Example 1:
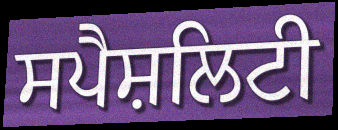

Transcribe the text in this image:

ਸਪੈਸ਼ਲਿਟੀ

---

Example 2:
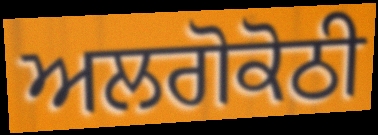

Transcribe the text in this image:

ਅਲਗੋਕੋਠੀ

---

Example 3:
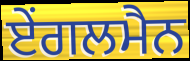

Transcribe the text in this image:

ਏਂਗਲਮੈਨ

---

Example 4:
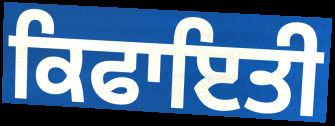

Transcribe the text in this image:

ਕਿਫਾਇਤੀ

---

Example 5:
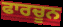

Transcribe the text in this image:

ਫਾਰਚੂਨ